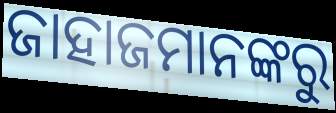
ଜାହାଜମାନଙ୍କରୁ